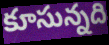
కూసున్నది